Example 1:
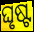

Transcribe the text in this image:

ଘୃଷ୍ଟ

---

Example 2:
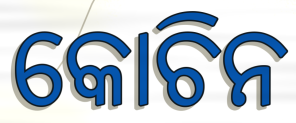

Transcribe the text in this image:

କୋଚିନ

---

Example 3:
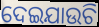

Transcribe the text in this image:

ଦେଇଯାଉଚି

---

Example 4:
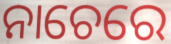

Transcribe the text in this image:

ନାଚେରେ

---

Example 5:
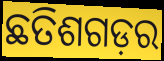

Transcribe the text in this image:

ଛତିଶଗଡ଼ର